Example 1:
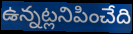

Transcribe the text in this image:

ఉన్నట్లనిపించేది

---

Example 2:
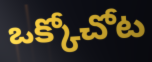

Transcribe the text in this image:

ఒక్కోచోట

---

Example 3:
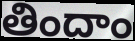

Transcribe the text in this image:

తిందాం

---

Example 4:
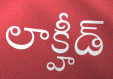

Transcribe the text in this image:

లాక్హీడ్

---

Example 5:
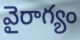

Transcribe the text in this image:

వైరాగ్యం